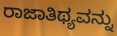
ರಾಜಾತಿಥ್ಯವನ್ನು